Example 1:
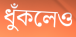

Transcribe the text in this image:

ধুঁকলেও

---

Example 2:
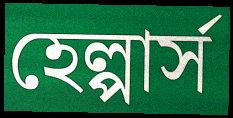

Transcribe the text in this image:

হেল্পার্স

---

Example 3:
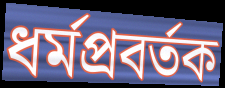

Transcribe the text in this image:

ধর্মপ্রবর্তক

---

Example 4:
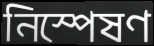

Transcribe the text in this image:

নিস্পেষণ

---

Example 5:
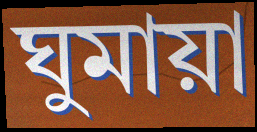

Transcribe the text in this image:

ঘুমায়া